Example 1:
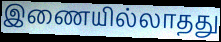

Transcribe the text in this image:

இணையில்லாதது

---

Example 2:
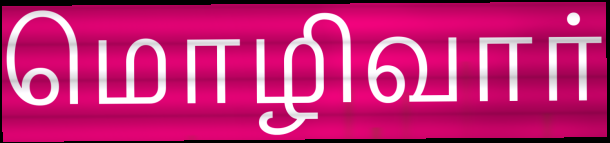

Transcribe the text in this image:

மொழிவார்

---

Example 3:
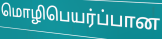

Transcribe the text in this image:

மொழிபெயர்ப்பான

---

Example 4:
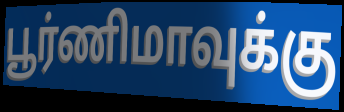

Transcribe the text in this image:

பூர்ணிமாவுக்கு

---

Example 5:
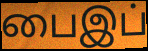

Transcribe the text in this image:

பைஇப்